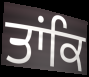
ਤਾਂਕਿ